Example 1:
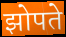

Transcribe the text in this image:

झोपते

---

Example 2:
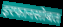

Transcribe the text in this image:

इरफानसोबत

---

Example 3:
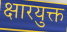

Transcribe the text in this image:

क्षारयुक्त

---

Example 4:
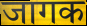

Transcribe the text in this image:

जागक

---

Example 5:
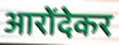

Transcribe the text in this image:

आरोंदेकर